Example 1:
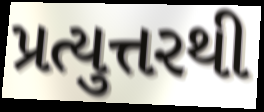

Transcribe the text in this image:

પ્રત્યુત્તરથી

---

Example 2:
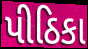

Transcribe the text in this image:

પીઠિકા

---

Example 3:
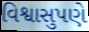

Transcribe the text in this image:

વિશ્વાસુપણે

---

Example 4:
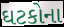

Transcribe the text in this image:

ઘટકોના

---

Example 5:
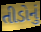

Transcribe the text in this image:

તીડોનું